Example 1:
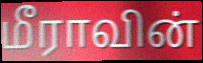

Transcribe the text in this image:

மீராவின்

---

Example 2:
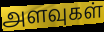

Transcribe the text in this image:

அளவுகள்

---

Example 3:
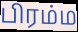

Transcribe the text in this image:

பிரம்ம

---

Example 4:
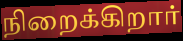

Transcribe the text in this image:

நிறைக்கிறார்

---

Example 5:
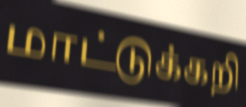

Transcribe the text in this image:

மாட்டுக்கறி